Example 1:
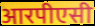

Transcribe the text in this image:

आरपीएसी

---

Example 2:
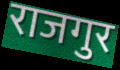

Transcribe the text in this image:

राजगुर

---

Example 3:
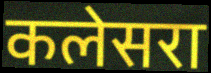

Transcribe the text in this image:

कलेसरा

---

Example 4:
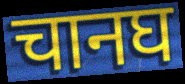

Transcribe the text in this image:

चानघ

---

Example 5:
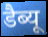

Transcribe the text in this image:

डैब्यू